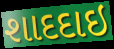
શાદદાઇ